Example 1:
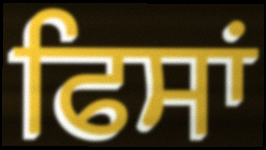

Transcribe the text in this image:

ਫਿਸਾਂ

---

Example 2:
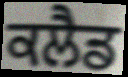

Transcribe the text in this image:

ਕਲੈਡ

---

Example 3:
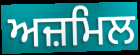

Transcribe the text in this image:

ਅਜ਼ਮਿਲ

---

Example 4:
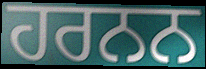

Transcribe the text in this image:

ਹਰਨਨ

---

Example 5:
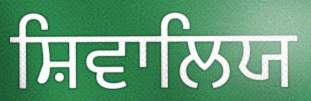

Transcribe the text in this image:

ਸ਼ਿਵਾਲਿਯ